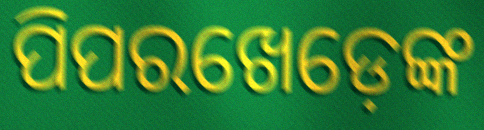
ପିପରଖେଡ଼େଙ୍କ